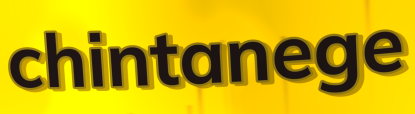
chintanege